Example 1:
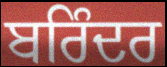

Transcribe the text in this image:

ਬਰਿੰਦਰ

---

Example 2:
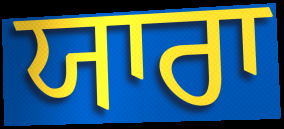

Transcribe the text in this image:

ਯਾਰਾ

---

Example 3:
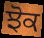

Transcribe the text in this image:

ਝੋਕ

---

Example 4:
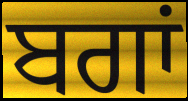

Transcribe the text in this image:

ਬਗਾਂ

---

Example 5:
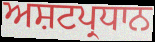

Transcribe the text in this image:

ਅਸ਼ਟਪ੍ਰਧਾਨ